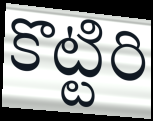
కొట్టిరి